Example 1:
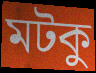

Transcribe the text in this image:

মটকু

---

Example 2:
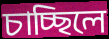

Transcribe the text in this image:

চাচ্ছিলে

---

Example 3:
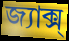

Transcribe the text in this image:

জ্যাক্স্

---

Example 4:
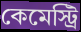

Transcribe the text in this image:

কেমেস্ট্রি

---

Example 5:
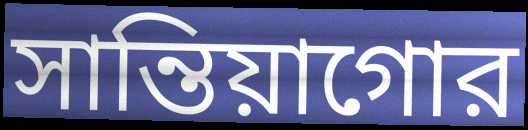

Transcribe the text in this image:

সান্তিয়াগোর